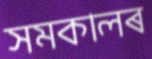
সমকালৰ